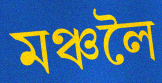
মঞ্চলৈ